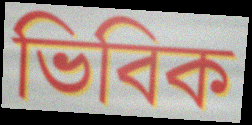
ভিবিক